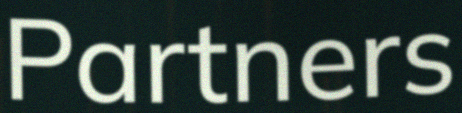
Partners